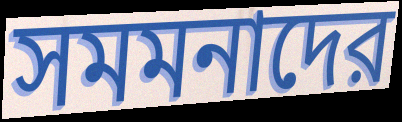
সমমনাদের